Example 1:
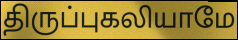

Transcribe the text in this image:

திருப்புகலியாமே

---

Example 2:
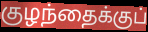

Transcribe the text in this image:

குழந்தைக்குப்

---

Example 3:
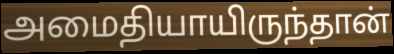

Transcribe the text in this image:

அமைதியாயிருந்தான்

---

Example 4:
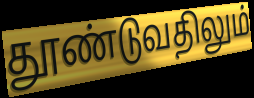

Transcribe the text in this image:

தூண்டுவதிலும்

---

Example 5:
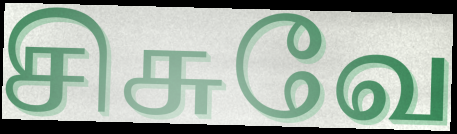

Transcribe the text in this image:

சிசுவே